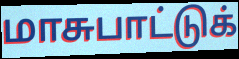
மாசுபாட்டுக்